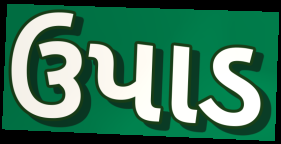
ઉપાડ